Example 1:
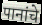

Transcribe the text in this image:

पानांचे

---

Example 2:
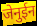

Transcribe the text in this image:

जेनुईन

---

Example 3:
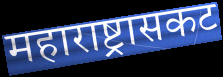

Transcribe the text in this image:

महाराष्ट्रासकट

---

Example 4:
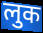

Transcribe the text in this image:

लुक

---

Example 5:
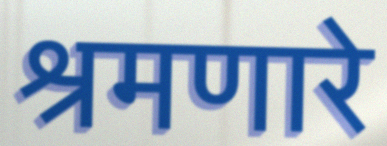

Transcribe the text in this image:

श्रमणारे